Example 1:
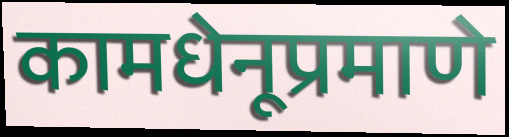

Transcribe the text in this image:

कामधेनूप्रमाणे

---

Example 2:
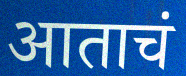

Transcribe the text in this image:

आताचं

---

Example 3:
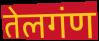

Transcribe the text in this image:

तेलगंण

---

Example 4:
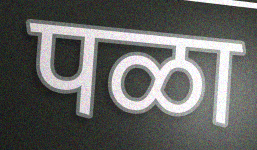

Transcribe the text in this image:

पळा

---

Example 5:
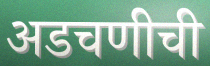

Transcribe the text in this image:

अडचणीची